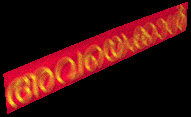
അവയെക്കാൾ